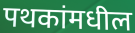
पथकांमधील